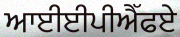
ਆਈਈਪੀਐੱਫਏ